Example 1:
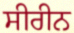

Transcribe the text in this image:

ਸੀਰੀਨ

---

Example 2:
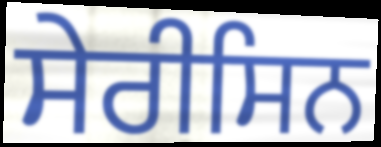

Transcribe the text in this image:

ਸੇਰੀਸਿਨ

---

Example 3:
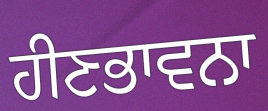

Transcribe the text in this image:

ਹੀਣਭਾਵਨਾ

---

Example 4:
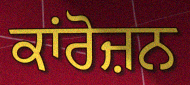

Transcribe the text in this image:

ਕਾਂਰੋਜ਼ਨ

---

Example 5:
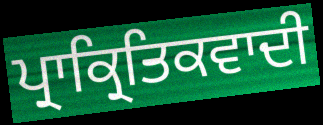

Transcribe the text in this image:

ਪ੍ਰਾਕ੍ਰਿਤਿਕਵਾਦੀ